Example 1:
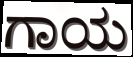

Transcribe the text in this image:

ಗಾಯ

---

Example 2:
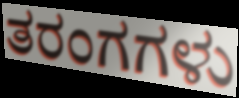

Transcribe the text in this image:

ತರಂಗಗಳು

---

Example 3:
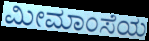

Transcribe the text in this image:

ಮೀಮಾಂಸೆಯ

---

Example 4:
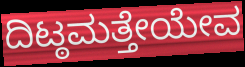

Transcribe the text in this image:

ದಿಟ್ಠಮತ್ತೇಯೇವ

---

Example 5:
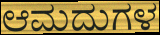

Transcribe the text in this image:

ಆಮದುಗಳ